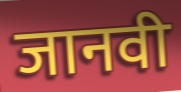
जानवी